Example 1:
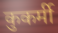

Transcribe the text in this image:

कुकर्मी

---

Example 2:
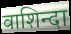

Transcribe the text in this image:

वाशिन्दा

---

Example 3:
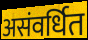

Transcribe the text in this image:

असंवर्धित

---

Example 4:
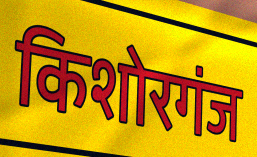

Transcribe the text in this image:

किशोरगंज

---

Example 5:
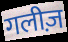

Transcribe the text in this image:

गलीज़